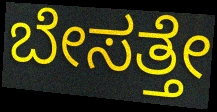
ಬೇಸತ್ತೇ